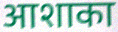
आशाका